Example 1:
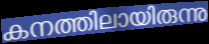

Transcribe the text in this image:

കനത്തിലായിരുന്നു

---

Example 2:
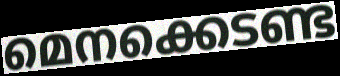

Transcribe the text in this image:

മെനക്കെടണ്ട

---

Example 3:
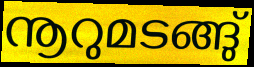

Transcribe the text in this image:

നൂറുമടങ്ങു്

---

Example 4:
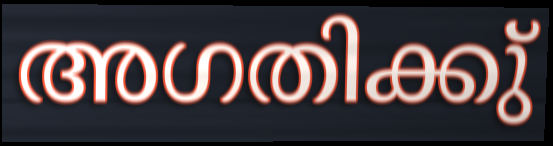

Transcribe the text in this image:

അഗതിക്കു്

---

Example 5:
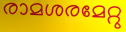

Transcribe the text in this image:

രാമശരമേറ്റു